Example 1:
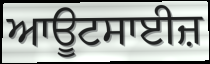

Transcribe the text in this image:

ਆਊਟਸਾਈਜ਼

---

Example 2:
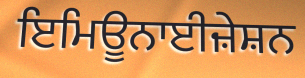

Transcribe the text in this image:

ਇਮਿਊਨਾਈਜ਼ੇਸ਼ਨ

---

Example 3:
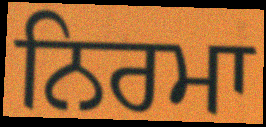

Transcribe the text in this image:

ਨਿਰਮਾ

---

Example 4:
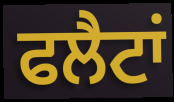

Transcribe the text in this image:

ਫਲੈਟਾਂ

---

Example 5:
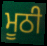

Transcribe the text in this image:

ਮੂਠੀ